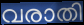
വരാതി